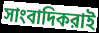
সাংবাদিকরাই